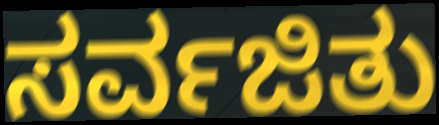
ಸರ್ವಜಿತು